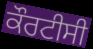
ਕੌਰਟੀਸੀ